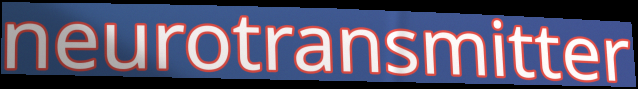
neurotransmitter